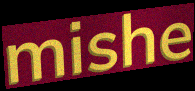
mishe